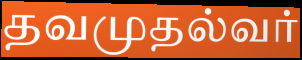
தவமுதல்வர்